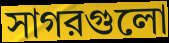
সাগরগুলো